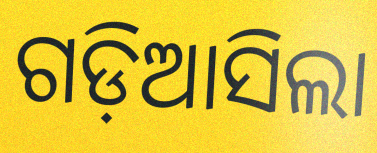
ଗଡ଼ିଆସିଲା